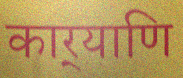
कार्याणि